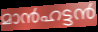
മാൻഹട്ടൻ